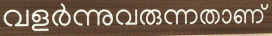
വളർന്നുവരുന്നതാണ്